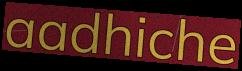
aadhiche